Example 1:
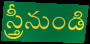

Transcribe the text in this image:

స్త్రీనుండి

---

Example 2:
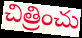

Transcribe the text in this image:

చిత్రించు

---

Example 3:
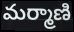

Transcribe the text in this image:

మర్మాణి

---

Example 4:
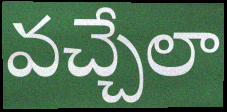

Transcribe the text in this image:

వచ్చేలా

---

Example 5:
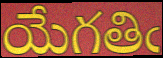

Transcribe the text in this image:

యేగతిఁ